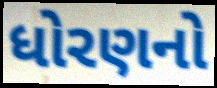
ધોરણનો